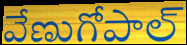
వేణుగోపాల్